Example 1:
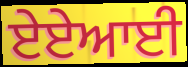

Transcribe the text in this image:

ਏਏਆਈ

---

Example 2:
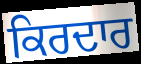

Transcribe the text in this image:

ਕਿਰਦਾਰ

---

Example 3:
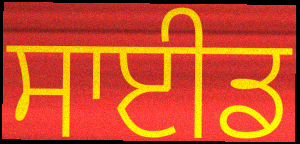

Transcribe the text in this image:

ਸਾਈਡ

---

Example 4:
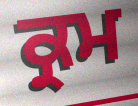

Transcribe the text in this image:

ਕ੍ਰਮ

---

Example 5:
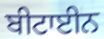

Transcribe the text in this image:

ਬੀਟਾਈਨ